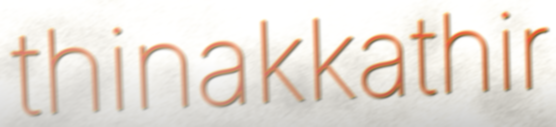
thinakkathir